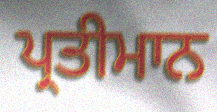
ਪ੍ਰਤੀਮਾਨ